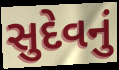
સુદેવનું